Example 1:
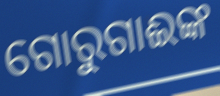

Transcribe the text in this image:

ଗୋରୁଗାଈଙ୍କ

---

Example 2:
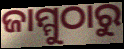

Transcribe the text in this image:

ଜାମ୍ମୁଠାରୁ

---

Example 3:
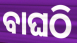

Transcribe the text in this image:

ବାଘଠି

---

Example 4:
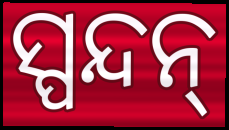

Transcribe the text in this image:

ସ୍ପନ୍ଦନ୍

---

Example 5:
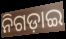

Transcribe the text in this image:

ନିଗଡ଼ାଇ